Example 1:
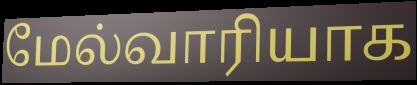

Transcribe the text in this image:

மேல்வாரியாக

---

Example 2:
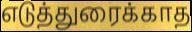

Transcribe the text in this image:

எடுத்துரைக்காத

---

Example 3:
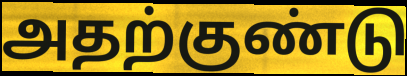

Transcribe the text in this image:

அதற்குண்டு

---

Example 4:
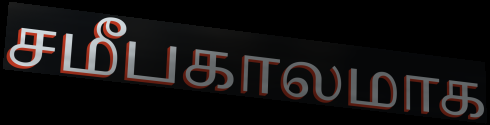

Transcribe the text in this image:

சமீபகாலமாக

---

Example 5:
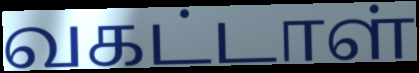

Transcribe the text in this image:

வகட்டாள்